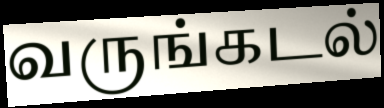
வருங்கடல்